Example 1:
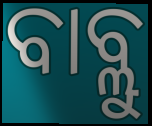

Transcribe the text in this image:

ବାବ୍ଲୁ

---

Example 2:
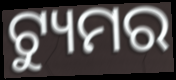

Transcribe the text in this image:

ଟ୍ୟୁମର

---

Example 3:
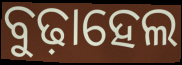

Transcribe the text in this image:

ବୁଢ଼ାହେଲ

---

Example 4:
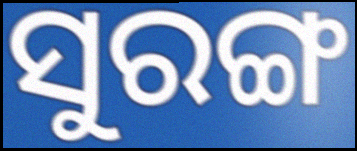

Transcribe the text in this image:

ସୁରଙ୍ଗ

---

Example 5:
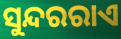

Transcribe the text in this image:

ସୁନ୍ଦରରାଏ